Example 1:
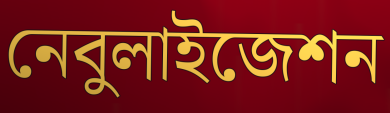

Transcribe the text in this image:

নেবুলাইজেশন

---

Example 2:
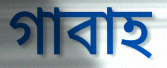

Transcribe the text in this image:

গাবাহ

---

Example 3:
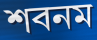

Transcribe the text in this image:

শবনম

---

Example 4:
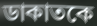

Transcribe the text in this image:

ডাকাতকে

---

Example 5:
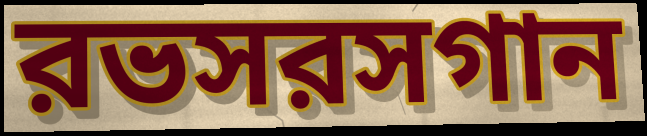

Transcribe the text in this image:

রভসরসগান